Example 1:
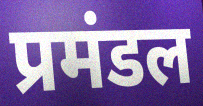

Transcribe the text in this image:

प्रमंडल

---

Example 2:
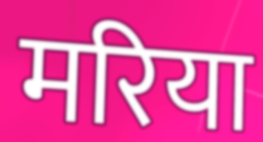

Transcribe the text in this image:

मरिया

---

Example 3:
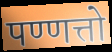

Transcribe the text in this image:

पण्णत्तो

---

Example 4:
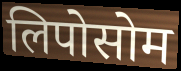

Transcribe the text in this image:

लिपोसोम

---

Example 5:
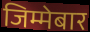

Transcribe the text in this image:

जिम्मेबार